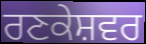
ਰਣਕੇਸ਼ਵਰ